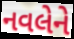
નવલેને